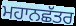
ਮਹਾਨਛੱਤਰ